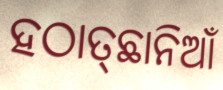
ହଠାତ୍‌ଛାନିଆଁ